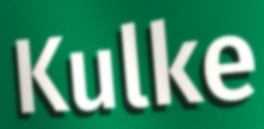
Kulke